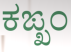
ಕಙ್ಖಂ